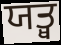
ਯਤ੍ਥ